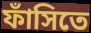
ফাঁসিতে